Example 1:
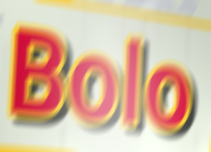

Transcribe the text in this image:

Bolo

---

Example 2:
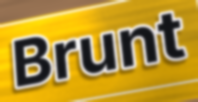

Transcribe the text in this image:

Brunt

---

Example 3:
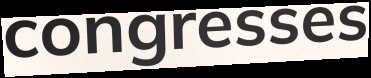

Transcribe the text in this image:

congresses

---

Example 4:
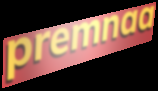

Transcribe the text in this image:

premnaa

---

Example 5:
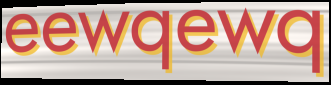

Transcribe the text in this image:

eewqewq